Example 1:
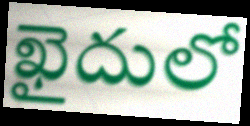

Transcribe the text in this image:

ఖైదులో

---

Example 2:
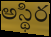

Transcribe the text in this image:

అస్థిర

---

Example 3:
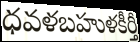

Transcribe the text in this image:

ధవళబహుళకీర్తీ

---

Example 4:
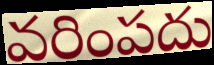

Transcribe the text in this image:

వరింపదు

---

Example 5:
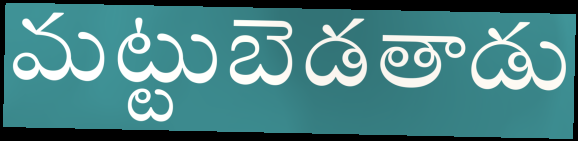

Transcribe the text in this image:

మట్టుబెడతాడు